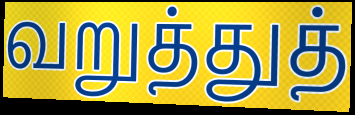
வறுத்துத்